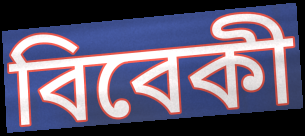
বিবেকী